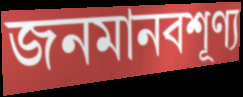
জনমানবশূণ্য